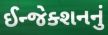
ઈન્જેક્શનનું